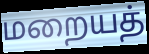
மறையத்